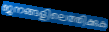
ജനങ്ങളിലെത്തിക്കുക